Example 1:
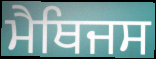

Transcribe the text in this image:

ਮੈਥਿਜਸ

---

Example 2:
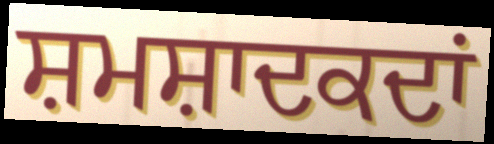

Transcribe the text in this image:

ਸ਼ਮਸ਼ਾਦਕਦਾਂ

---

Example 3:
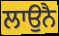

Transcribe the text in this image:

ਲਾਉਨੈ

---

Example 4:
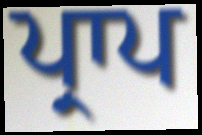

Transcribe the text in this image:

ਪ੍ਰਾਪ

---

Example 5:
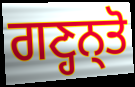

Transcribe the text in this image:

ਗਣ੍ਹਨ੍ਤੋ